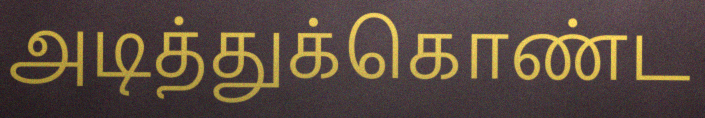
அடித்துக்கொண்ட